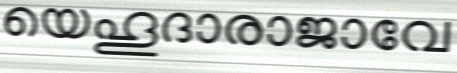
യെഹൂദാരാജാവേ